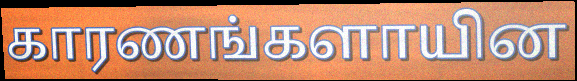
காரணங்களாயின